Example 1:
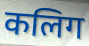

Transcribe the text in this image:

कलिग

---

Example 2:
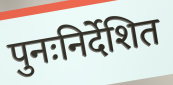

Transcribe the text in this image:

पुनःनिर्देशित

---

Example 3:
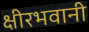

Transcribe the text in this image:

क्षीरभवानी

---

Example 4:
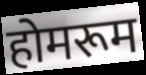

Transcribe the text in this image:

होमरूम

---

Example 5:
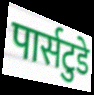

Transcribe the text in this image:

पार्सटुडे